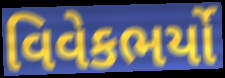
વિવેકભર્યો